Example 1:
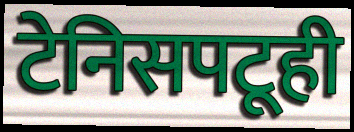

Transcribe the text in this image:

टेनिसपटूही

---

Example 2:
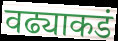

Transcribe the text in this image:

वढ्याकडं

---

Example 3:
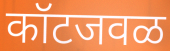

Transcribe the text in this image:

कॉटजवळ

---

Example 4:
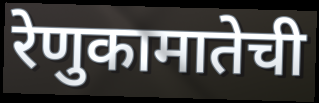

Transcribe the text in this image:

रेणुकामातेची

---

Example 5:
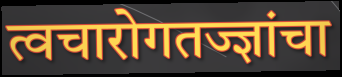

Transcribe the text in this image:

त्वचारोगतज्ज्ञांचा